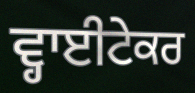
ਵ੍ਹਾਈਟੇਕਰ